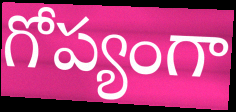
గోప్యంగా